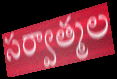
సర్వాత్మల